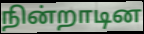
நின்றாடின